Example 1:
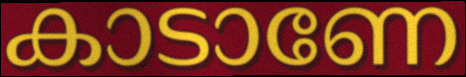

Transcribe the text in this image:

കാടാണേ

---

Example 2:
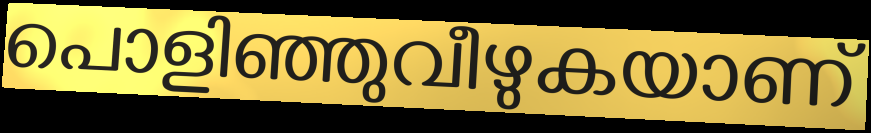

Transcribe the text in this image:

പൊളിഞ്ഞുവീഴുകയാണ്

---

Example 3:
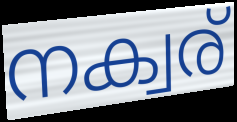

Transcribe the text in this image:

നക്വര്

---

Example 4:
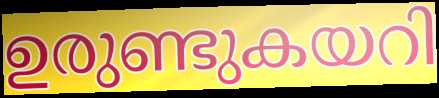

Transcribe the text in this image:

ഉരുണ്ടുകയറി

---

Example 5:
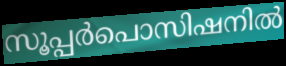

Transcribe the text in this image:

സൂപ്പർപൊസിഷനിൽ